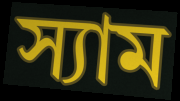
স্যাম